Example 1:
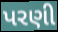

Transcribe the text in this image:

પરણી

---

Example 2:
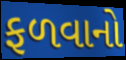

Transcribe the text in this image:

ફળવાનો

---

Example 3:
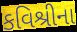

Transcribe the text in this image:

કવિશ્રીના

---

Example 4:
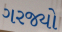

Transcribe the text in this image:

ગરજ્યો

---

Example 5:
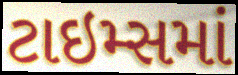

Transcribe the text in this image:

ટાઇમ્સમાં